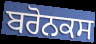
ਬਰੋਨਕਸ